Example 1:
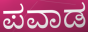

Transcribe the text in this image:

ಪವಾಡ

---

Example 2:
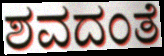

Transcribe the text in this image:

ಶವದಂತೆ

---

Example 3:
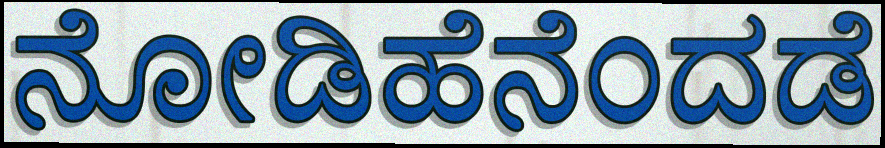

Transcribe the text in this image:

ನೋಡಿಹೆನೆಂದಡೆ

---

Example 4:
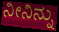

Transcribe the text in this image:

ನೀನಿನ್ನು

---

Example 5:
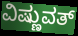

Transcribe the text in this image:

ವಿಷ್ಣುವತ್